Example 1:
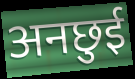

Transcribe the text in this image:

अनछुई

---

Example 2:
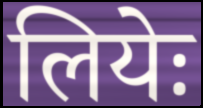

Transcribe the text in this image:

लियेः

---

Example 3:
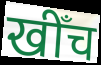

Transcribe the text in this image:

खीँच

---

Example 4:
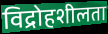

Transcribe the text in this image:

विद्रोहशीलता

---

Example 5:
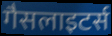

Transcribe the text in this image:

गैसलाइटर्स